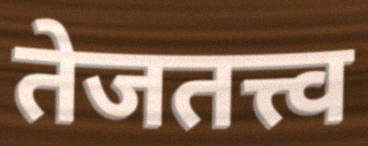
तेजतत्त्व